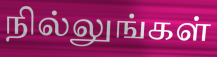
நில்லுங்கள்